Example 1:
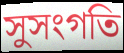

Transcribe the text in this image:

সুসংগতি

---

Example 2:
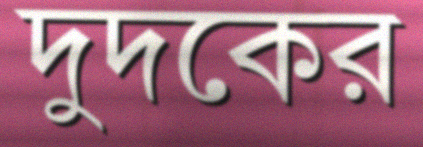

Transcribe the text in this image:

দুদকের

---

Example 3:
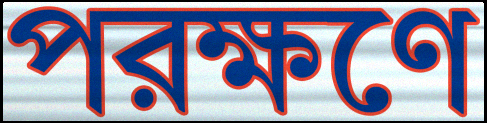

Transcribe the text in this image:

পরক্ষণে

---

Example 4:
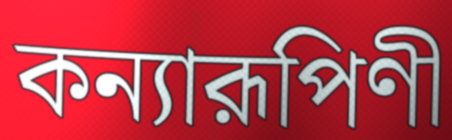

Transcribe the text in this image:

কন্যারূপিণী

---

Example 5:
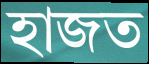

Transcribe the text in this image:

হাজত